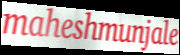
maheshmunjale